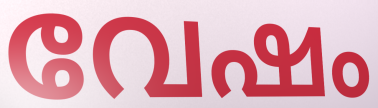
വേഷം